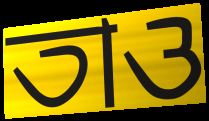
তাও